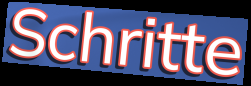
Schritte